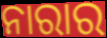
ନାରାର